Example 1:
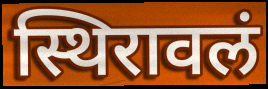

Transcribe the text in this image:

स्थिरावलं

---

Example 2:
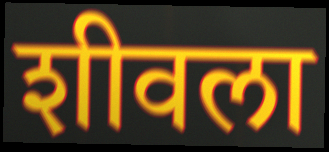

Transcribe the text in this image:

शीवला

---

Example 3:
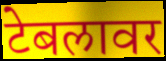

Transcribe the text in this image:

टेबलावर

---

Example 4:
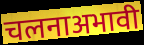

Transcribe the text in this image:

चलनाअभावी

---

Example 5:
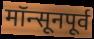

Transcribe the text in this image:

मॉन्सूनपूर्व